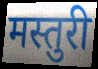
मस्तुरी